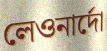
লেওনার্দো